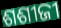
ଶଶୀଜୀ